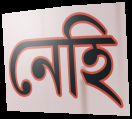
নেহি